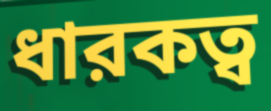
ধারকত্ব